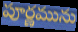
పూర్ణమును